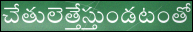
చేతులెత్తేస్తుండటంతో